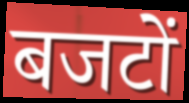
बजटों